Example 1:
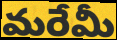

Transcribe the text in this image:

మరేమీ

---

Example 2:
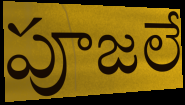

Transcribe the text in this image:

పూజలే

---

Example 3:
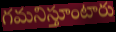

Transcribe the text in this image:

గమనిస్తూంటారు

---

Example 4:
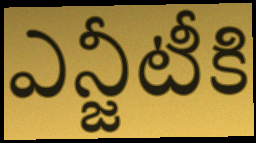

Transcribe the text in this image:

ఎన్జీటీకి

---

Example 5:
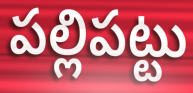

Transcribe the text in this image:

పల్లిపట్టు